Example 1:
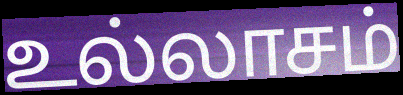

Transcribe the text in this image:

உல்லாசம்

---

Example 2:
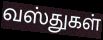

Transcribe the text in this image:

வஸ்துகள்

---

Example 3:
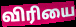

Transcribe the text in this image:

விரியை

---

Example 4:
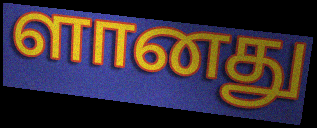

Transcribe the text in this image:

ளானது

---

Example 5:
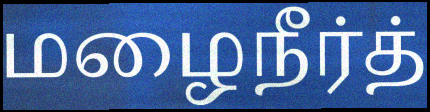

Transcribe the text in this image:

மழைநீர்த்